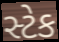
સ્ટેક